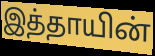
இத்தாயின்